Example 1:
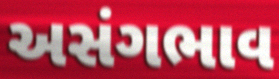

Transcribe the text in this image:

અસંગભાવ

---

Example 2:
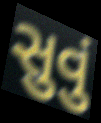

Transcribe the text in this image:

સુવું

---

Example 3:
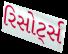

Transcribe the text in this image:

રિસોર્ટ્સ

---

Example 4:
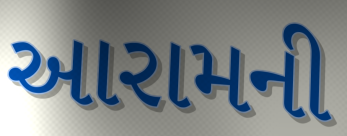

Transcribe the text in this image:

આરામની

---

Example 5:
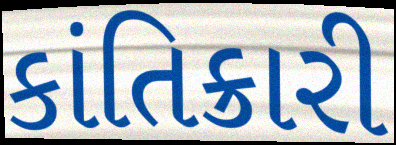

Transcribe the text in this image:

કાંતિક્રારી